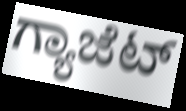
ಗ್ಯಾಜೆಟ್